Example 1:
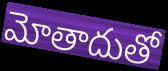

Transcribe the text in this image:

మోతాదుతో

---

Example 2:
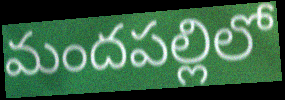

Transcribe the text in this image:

మందపల్లిలో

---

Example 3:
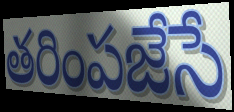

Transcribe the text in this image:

తరింపజేసే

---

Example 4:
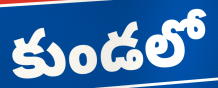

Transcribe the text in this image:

కుండలో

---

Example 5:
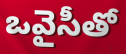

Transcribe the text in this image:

ఒవైసీతో